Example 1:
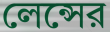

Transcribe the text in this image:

লেন্সের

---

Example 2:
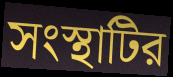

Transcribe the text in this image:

সংস্থাটির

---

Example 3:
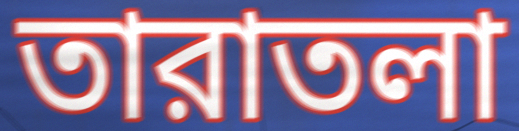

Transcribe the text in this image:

তারাতলা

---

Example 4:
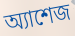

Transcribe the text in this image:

অ্যাশেজ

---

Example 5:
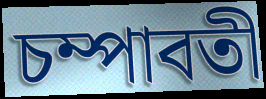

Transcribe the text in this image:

চম্পাবতী